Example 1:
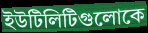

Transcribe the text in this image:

ইউটিলিটিগুলোকে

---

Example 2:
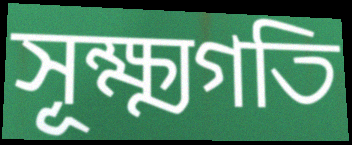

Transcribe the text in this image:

সূক্ষ্মগতি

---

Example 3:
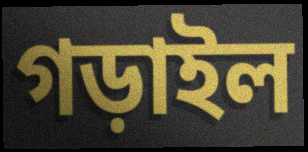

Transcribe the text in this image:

গড়াইল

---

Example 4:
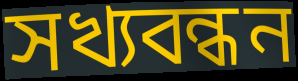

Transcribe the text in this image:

সখ্যবন্ধন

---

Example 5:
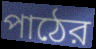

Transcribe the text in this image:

পাঠের